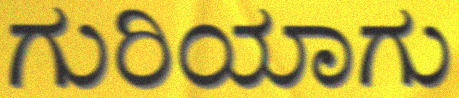
ಗುರಿಯಾಗು